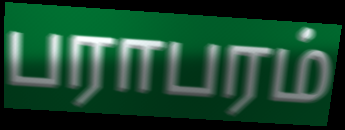
பராபரம்